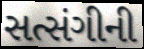
સત્સંગીની